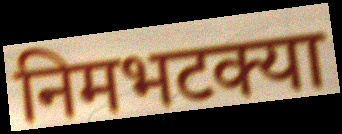
निमभटक्या